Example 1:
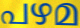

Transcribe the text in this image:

പഴമ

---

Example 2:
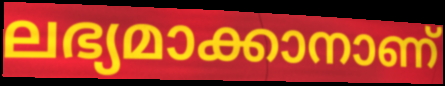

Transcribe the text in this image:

ലഭ്യമാക്കാനാണ്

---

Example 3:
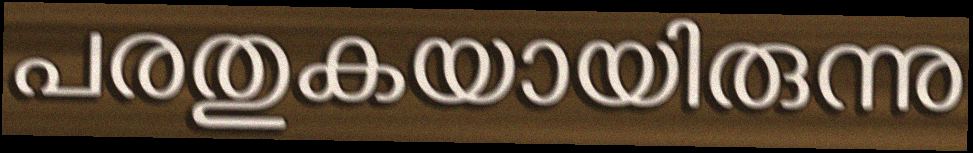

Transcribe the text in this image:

പരതുകയായിരുന്നു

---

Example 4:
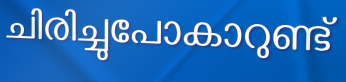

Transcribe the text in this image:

ചിരിച്ചുപോകാറുണ്ട്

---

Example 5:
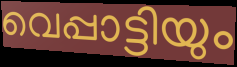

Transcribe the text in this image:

വെപ്പാട്ടിയും